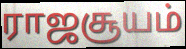
ராஜசூயம்